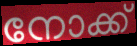
നോക്ക്